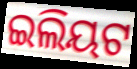
ଇଲିୟଟ